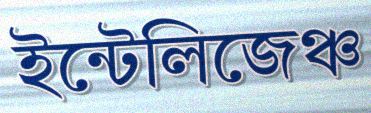
ইন্টেলিজেঞ্চ